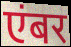
एंबर